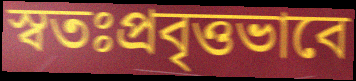
স্বতঃপ্রবৃত্তভাবে